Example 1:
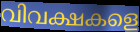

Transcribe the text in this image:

വിവക്ഷകളെ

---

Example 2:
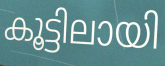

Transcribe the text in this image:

കൂട്ടിലായി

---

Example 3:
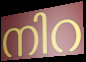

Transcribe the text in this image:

നിറ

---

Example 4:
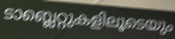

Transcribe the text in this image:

ടാബ്ലെറ്റുകളിലൂടെയും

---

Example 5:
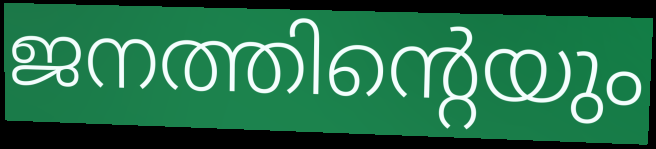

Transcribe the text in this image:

ജനത്തിന്റെയും